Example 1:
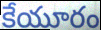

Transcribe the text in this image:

కేయూరం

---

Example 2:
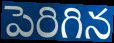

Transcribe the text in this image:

పెరిగిన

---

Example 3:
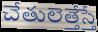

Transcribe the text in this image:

చేతులెత్తేస్తే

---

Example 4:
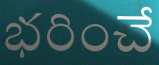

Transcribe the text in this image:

భరించే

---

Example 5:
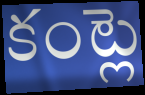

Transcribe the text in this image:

కంట్లె